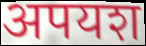
अपयश